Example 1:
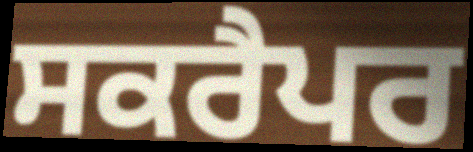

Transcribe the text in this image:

ਸਕਰੈਪਰ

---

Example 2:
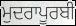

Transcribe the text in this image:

ਮੁਦਰਾਪੂਰਬੀ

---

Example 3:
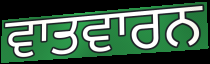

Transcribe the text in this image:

ਵਾਤਵਾਰਨ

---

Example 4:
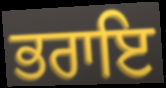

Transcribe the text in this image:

ਭਰਾਇ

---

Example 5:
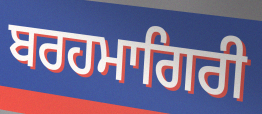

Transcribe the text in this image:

ਬਰਹਮਾਗਿਰੀ